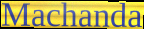
Machanda